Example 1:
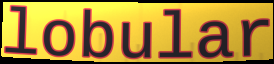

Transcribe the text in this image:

lobular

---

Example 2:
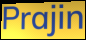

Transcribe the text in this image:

Prajin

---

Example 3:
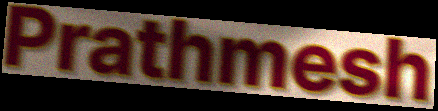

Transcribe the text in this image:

Prathmesh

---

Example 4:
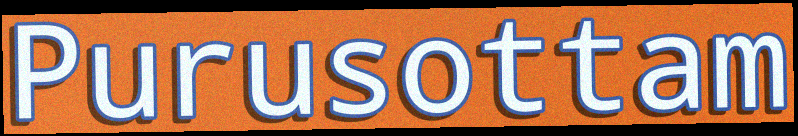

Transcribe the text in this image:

Purusottam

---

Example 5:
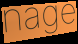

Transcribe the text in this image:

nage